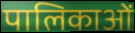
पालिकाओं